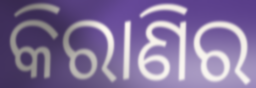
କିରାଣିର